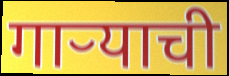
गाऱ्याची